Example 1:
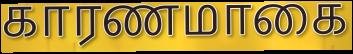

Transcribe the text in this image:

காரணமாகை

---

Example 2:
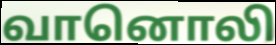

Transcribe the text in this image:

வானொலி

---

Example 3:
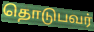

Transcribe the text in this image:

தொடுபவர்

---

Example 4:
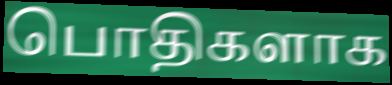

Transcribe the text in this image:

பொதிகளாக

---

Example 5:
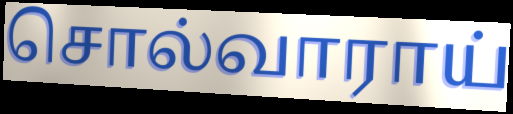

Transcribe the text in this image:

சொல்வாராய்